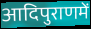
आदिपुराणमें